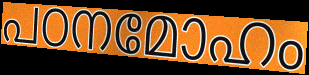
പഠനമോഹം